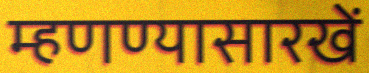
म्हणण्यासारखें